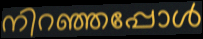
നിറഞ്ഞപ്പോൾ